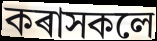
কৰাসকলে